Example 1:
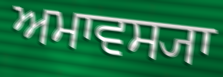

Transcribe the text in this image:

ਅਮਾਵਸ੍ਯਾ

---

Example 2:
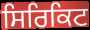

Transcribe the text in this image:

ਸਿਰਿਕਿਟ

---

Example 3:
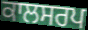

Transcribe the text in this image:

ਕਾਲਸਰਪ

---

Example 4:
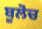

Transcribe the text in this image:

ਬੂਲੋਚ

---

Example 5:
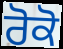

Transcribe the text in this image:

ਰੋਕੋ